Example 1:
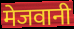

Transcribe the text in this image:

मेजवानी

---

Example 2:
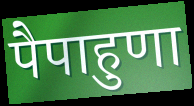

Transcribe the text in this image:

पैपाहुणा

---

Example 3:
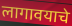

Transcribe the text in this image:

लागावयाचे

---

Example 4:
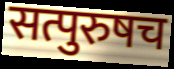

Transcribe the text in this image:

सत्पुरुषच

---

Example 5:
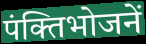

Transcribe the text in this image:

पंक्तिभोजनें